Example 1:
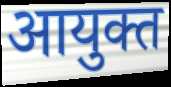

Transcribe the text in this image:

आयुक्त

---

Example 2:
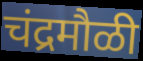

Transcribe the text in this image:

चंद्रमौळी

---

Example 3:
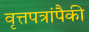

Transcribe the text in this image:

वृत्तपत्रांपैकी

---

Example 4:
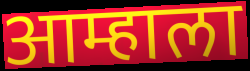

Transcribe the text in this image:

आम्हाला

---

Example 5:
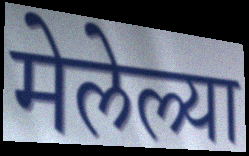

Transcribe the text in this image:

मेलेल्या